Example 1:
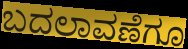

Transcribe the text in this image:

ಬದಲಾವಣೆಗೂ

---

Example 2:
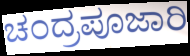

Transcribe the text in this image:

ಚಂದ್ರಪೂಜಾರಿ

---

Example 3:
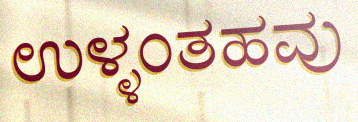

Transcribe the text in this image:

ಉಳ್ಳಂತಹವು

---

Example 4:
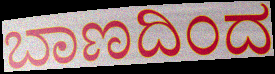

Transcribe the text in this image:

ಬಾಣದಿಂದ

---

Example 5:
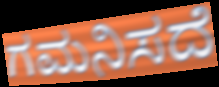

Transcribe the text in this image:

ಗಮನಿಸದೆ